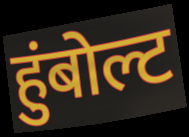
हुंबोल्ट